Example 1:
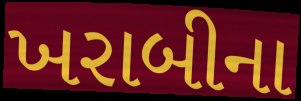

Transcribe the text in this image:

ખરાબીના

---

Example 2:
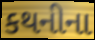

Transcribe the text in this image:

કથનીના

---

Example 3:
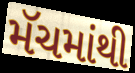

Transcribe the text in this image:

મૅચમાંથી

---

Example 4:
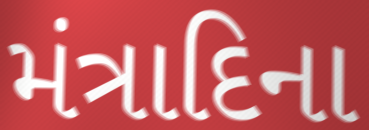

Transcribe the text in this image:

મંત્રાદિના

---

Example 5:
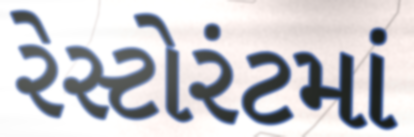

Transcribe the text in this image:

રેસ્ટોરંટમાં